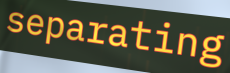
separating